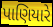
પાણિયારે